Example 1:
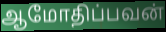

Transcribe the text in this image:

ஆமோதிப்பவன்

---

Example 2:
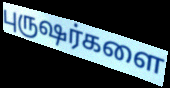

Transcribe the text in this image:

புருஷர்களை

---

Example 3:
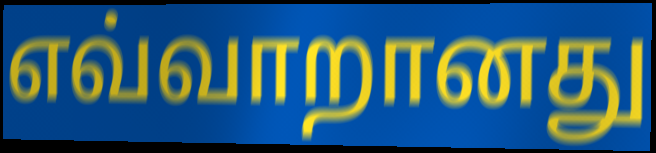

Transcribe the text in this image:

எவ்வாறானது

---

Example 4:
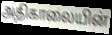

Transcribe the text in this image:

அதிகாலையின்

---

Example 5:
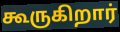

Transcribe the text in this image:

கூருகிறார்